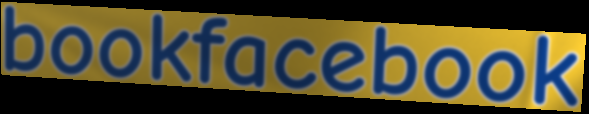
bookfacebook